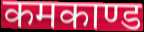
कमकाण्ड